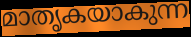
മാതൃകയാകുന്ന